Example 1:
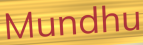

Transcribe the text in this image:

Mundhu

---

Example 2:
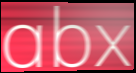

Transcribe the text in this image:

abx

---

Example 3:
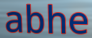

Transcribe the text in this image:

abhe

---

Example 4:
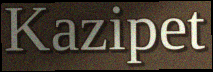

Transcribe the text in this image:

Kazipet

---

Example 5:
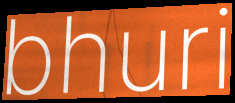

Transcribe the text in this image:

bhuri